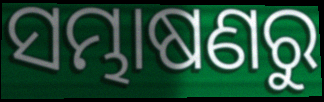
ସମ୍ଭାଷଣରୁ